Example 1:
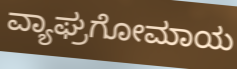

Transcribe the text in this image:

ವ್ಯಾಘ್ರಗೋಮಾಯ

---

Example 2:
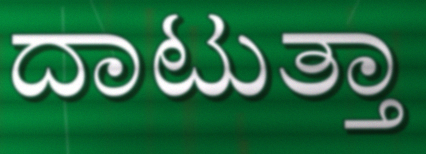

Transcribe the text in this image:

ದಾಟುತ್ತಾ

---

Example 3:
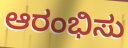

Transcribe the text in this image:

ಆರಂಭಿಸು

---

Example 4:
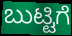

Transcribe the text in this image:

ಬುಟ್ಟಿಗೆ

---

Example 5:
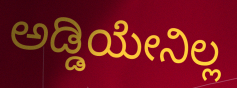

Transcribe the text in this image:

ಅಡ್ಡಿಯೇನಿಲ್ಲ